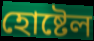
হোষ্টেল